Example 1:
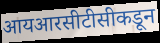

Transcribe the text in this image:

आयआरसीटीसीकडून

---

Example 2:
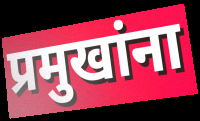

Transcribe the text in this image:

प्रमुखांना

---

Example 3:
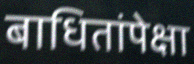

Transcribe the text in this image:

बाधितांपेक्षा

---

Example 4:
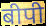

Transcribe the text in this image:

बीपी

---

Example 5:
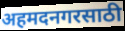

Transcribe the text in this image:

अहमदनगरसाठी